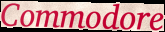
Commodore